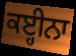
ਕੲ੍ਹੀਨਾ